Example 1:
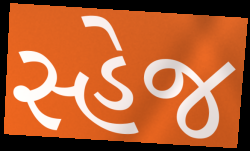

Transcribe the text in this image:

સ્હેજ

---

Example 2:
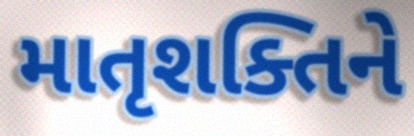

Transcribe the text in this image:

માતૃશક્તિને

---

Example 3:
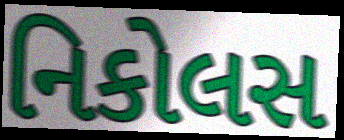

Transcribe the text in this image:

નિકોલસ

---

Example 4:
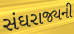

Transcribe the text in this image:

સંઘરાજ્યની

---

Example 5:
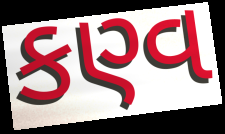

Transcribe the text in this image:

કણ્વ